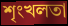
শৃংখলতা